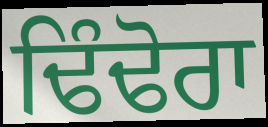
ਢਿੰਢੋਰਾ